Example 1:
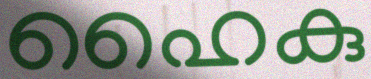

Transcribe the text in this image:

ഹൈകു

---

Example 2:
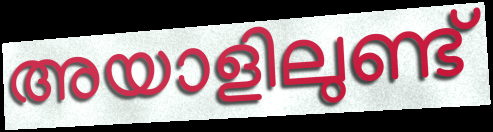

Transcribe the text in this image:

അയാളിലുണ്ട്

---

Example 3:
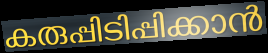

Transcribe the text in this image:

കരുപ്പിടിപ്പിക്കാൻ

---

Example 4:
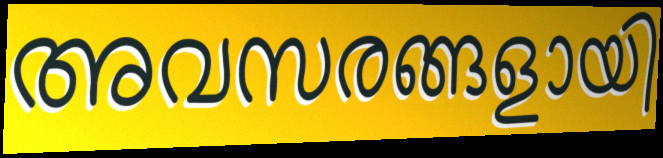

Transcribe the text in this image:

അവസരങ്ങളായി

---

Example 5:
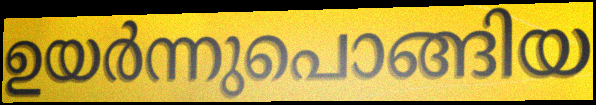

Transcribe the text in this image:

ഉയർന്നുപൊങ്ങിയ